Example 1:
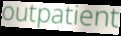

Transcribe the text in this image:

outpatient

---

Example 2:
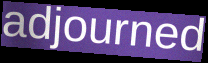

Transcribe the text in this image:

adjourned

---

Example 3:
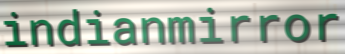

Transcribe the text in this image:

indianmirror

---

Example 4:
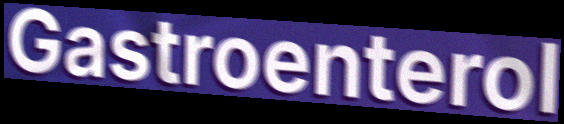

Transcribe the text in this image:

Gastroenterol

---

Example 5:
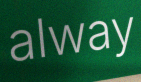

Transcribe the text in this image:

alway